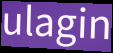
ulagin